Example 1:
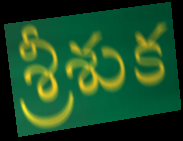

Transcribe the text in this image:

శ్రీశుక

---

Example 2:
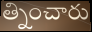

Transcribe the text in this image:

త్నించారు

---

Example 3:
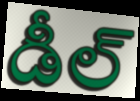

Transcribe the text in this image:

డీల్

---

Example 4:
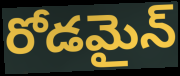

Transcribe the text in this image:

రోడమైన్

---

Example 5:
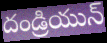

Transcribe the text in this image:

దండ్రియున్